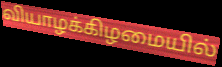
வியாழக்கிழமையில்